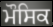
ਮੌਸਿਕ